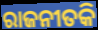
ରାଜନୀତକି